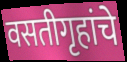
वसतीगृहांचे